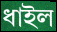
ধাইল